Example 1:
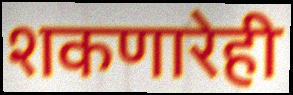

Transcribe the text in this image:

शकणारेही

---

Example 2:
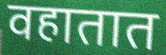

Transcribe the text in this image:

वहातात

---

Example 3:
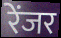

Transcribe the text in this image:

रेंजर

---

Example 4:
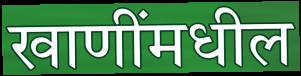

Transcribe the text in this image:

खाणींमधील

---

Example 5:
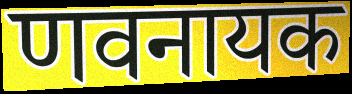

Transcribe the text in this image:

णवनायक